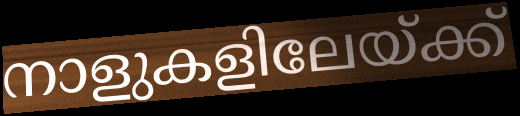
നാളുകളിലേയ്ക്ക്